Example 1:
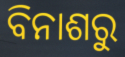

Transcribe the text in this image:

ବିନାଶରୁ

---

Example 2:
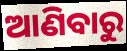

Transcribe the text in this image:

ଆଣିବାରୁ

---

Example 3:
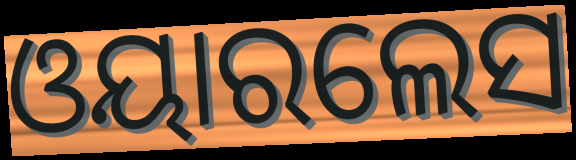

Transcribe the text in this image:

ଓୟାରଲେସ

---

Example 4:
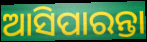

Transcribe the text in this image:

ଆସିପାରନ୍ତା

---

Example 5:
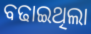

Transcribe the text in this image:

ବଢାଇଥିଲା